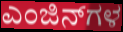
ಎಂಜಿನ್‌ಗಳ